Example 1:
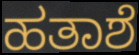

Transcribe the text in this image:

ಹತಾಶೆ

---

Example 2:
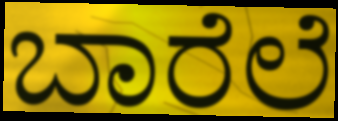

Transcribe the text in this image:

ಬಾರೆಲೆ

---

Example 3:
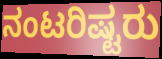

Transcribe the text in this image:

ನಂಟರಿಷ್ಟರು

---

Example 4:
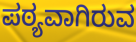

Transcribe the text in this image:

ಪಠ್ಯವಾಗಿರುವ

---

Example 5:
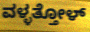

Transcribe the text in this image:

ವಳ್ಳತ್ತೋಳ್